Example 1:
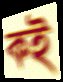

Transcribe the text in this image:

কই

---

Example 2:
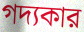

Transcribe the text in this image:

গদ্যকার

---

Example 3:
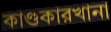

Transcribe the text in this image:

কাণ্ডকারখানা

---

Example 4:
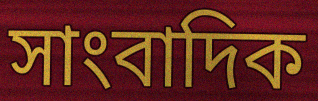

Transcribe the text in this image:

সাংবাদিক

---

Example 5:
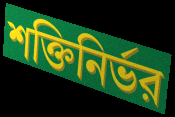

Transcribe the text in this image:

শক্তিনির্ভর